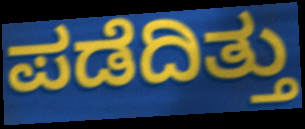
ಪಡೆದಿತ್ತು